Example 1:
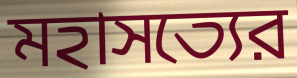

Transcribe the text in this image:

মহাসত্যের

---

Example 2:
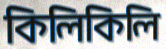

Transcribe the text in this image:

কিলিকিলি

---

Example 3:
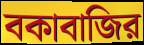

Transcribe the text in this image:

বকাবাজির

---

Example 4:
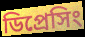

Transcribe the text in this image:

ডিপ্রেসিং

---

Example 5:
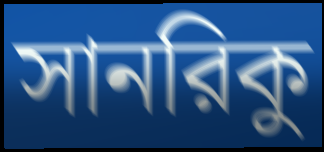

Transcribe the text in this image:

সানরিকু